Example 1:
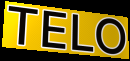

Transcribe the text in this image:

TELO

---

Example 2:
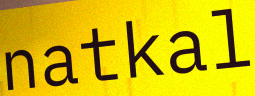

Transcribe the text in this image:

natkal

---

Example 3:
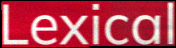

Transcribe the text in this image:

Lexical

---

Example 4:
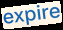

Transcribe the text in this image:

expire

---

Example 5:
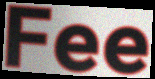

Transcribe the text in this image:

Fee